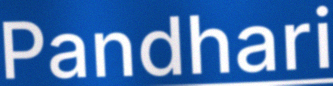
Pandhari